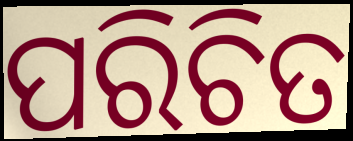
ପରିଚିତ